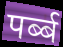
पर्ब्ब